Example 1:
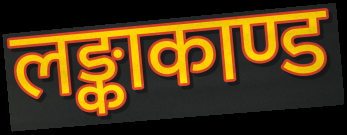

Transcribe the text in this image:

लङ्काकाण्ड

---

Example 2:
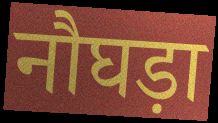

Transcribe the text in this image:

नौघड़ा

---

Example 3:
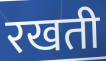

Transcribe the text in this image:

रखती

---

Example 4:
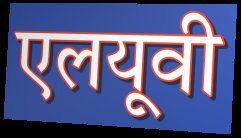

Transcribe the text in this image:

एलयूवी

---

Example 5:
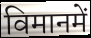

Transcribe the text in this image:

विमानमें